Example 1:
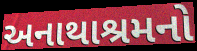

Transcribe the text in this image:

અનાથાશ્રમનો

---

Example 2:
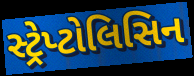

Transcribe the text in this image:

સ્ટ્રેપ્ટોલિસિન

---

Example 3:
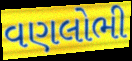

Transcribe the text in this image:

વણલોભી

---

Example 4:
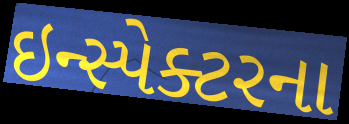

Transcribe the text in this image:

ઇન્સ્પેક્ટરના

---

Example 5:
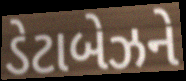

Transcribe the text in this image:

ડેટાબેઝને